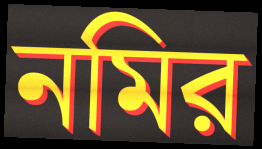
নমির